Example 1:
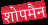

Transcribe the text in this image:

शोपमैन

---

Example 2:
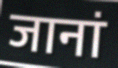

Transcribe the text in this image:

जानां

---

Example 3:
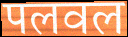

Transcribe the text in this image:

पलवल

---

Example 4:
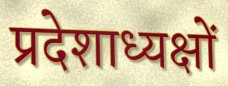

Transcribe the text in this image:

प्रदेशाध्यक्षों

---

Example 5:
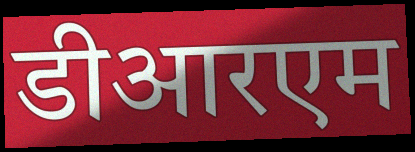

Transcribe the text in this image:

डीआरएम